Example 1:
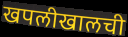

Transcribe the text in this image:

खपलीखालची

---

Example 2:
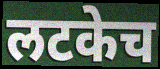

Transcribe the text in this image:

लटकेच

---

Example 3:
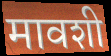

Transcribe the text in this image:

मावशी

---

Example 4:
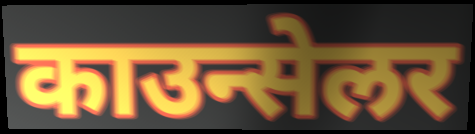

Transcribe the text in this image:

काउन्सेलर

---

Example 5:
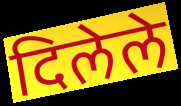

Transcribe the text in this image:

दिलेले